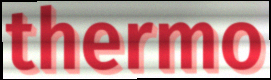
thermo